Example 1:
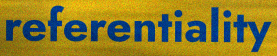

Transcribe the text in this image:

referentiality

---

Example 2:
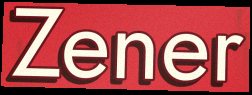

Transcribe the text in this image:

Zener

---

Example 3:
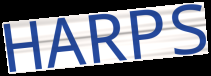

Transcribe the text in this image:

HARPS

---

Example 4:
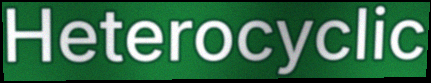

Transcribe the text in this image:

Heterocyclic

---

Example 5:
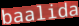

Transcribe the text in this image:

baalida